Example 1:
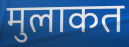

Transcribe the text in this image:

मुलाकत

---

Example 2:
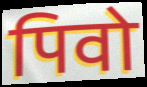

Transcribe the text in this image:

पिवो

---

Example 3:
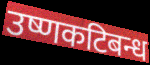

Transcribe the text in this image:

उष्णकटिबन्ध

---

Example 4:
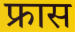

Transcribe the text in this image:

फ्रास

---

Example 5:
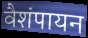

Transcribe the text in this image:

वैशंपायन